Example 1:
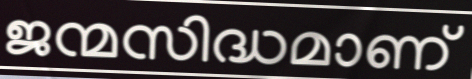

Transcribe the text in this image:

ജന്മസിദ്ധമാണ്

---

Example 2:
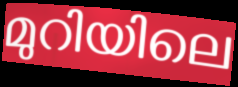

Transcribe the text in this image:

മുറിയിലെ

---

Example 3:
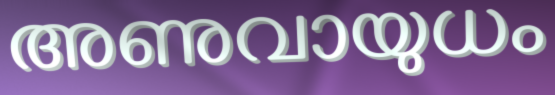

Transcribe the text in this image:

അണുവായുധം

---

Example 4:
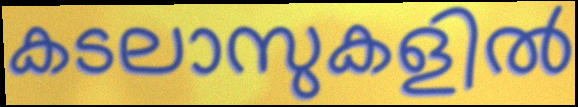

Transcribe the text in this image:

കടലാസുകളിൽ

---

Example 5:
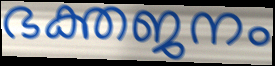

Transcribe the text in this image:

ഭക്തജനം